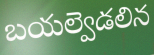
బయల్వెడలిన